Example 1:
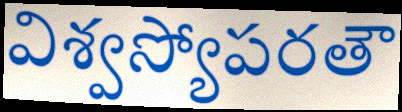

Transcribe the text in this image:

విశ్వస్యోపరతౌ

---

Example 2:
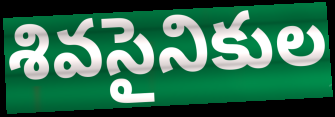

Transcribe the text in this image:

శివసైనికుల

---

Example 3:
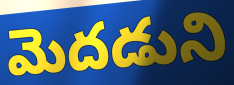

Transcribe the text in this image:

మెదడుని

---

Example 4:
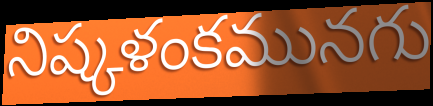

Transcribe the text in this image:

నిష్కళంకమునగు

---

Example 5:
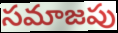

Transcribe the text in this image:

సమాజపు